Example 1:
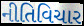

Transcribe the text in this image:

નીતિવિચાર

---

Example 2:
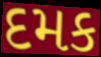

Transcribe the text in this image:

દમક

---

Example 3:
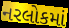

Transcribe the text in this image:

નરલોકમાં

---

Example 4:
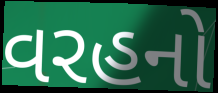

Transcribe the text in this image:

વરહનો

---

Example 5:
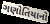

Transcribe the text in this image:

ગણોતિયાનો